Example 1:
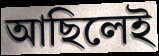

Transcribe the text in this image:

আছিলেই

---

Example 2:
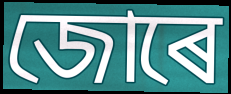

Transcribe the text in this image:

জোৰে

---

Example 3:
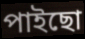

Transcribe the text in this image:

পাইছো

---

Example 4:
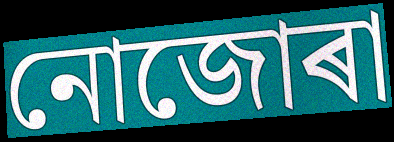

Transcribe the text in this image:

নোজোৰা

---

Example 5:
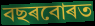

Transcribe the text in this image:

বছৰবোৰত